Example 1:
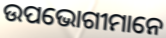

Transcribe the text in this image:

ଉପଭୋଗୀମାନେ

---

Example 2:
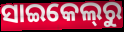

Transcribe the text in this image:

ସାଇକେଲ୍‌ରୁ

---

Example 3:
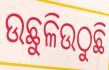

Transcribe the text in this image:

ଉଛୁଳିଉଠୁଛି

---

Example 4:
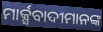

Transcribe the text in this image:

ମାର୍କ୍ସବାଦୀମାନଙ୍କ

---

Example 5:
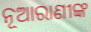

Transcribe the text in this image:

ନୂଆରାଣୀଙ୍କ